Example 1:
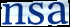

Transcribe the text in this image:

nsa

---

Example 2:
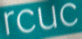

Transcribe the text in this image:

rcuc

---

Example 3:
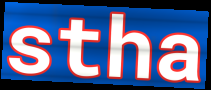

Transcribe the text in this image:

stha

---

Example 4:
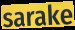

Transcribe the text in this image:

sarake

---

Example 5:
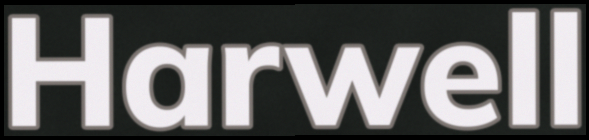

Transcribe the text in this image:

Harwell